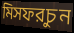
মিসফরচুন